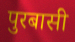
पुरबासी